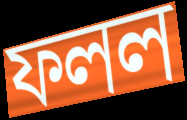
ফলল